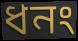
ধনং